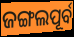
ଜଙ୍ଗଲପୂର୍ବ